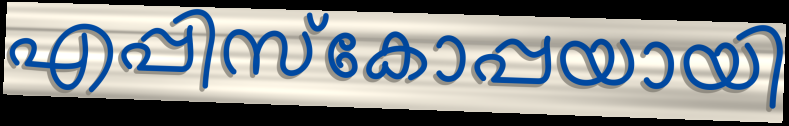
എപ്പിസ്കോപ്പയായി